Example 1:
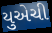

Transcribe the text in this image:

યુએચી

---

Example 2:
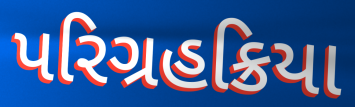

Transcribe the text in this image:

પરિગ્રહક્રિયા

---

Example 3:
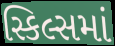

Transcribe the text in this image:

સ્કિલ્સમાં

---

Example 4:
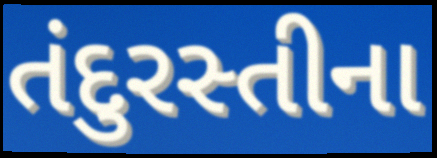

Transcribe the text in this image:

તંદુરસ્તીના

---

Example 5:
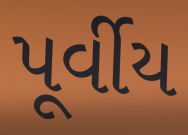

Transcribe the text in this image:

પૂર્વીય